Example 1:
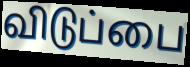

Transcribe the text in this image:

விடுப்பை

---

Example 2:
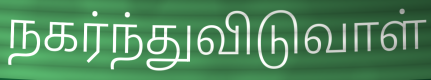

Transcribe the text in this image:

நகர்ந்துவிடுவாள்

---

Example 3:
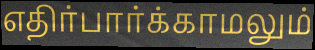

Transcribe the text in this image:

எதிர்பார்க்காமலும்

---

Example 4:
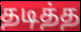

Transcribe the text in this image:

தடித்த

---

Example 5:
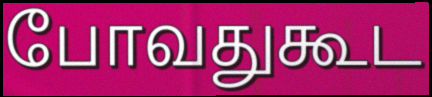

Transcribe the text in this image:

போவதுகூட